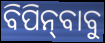
ବିପିନ୍‍ବାବୁ